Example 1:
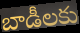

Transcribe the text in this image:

బాడీలకు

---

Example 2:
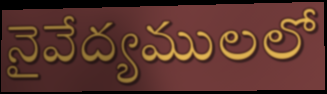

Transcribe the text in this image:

నైవేద్యములలో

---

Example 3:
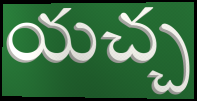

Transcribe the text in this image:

యచ్చ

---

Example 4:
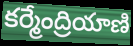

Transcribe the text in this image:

కర్మేంద్రియాణి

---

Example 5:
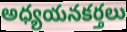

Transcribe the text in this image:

అధ్యయనకర్తలు